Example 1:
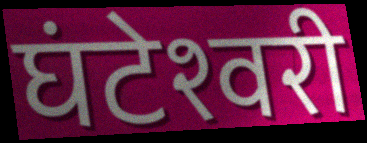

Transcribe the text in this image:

घंटेश्वरी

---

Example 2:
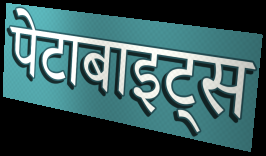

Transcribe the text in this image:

पेटाबाइट्स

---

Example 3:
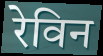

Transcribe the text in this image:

रेविन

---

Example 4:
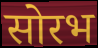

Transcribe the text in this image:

सोरभ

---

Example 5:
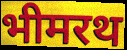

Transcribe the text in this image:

भीमरथ